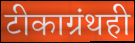
टीकाग्रंथही